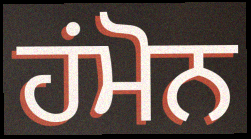
ਹਂਮੋਨ